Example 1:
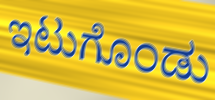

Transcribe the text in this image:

ಇಟುಗೊಂಡು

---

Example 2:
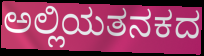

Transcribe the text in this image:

ಅಲ್ಲಿಯತನಕದ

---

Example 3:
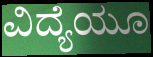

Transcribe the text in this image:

ವಿದ್ಯೆಯೂ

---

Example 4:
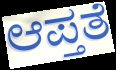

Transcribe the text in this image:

ಆಪ್ತತೆ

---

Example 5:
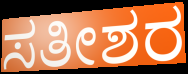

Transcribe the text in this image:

ಸತೀಶರ